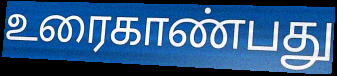
உரைகாண்பது